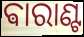
ଵାରାଣ୍ଟ